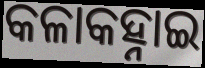
କଳାକହ୍ନାଇ